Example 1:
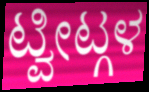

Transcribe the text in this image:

ಟ್ವೀಟ್ಗಳ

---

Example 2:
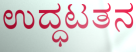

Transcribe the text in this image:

ಉದ್ಧಟತನ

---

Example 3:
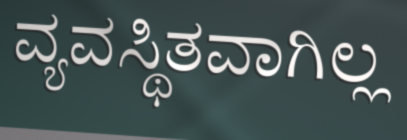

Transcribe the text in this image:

ವ್ಯವಸ್ಥಿತವಾಗಿಲ್ಲ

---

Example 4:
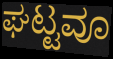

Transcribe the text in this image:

ಘಟ್ಟವೂ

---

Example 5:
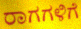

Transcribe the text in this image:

ರಾಗಗಳಿಗೆ